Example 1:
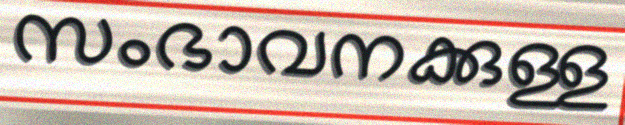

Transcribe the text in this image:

സംഭാവനക്കുള്ള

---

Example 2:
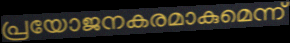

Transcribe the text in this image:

പ്രയോജനകരമാകുമെന്ന്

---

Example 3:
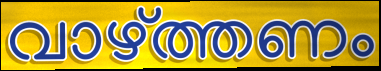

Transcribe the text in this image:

വാഴ്ത്തണം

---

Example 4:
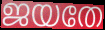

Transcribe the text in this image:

ജയതേ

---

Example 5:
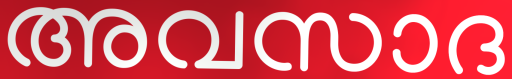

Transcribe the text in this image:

അവസാദ